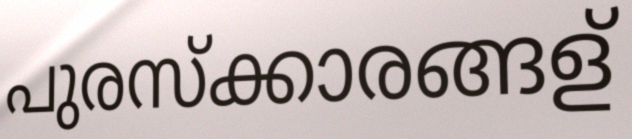
പുരസ്ക്കാരങ്ങള്